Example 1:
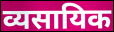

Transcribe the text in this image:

व्यसायिक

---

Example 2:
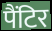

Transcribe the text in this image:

पैंटिर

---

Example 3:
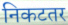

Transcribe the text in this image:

निकटतर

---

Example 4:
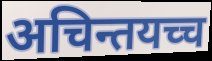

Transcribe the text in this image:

अचिन्तयच्च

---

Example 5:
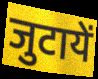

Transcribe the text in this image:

जुटायें